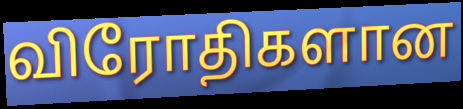
விரோதிகளான